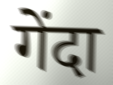
गेंदा